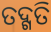
ତଦ୍ଗତି